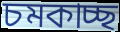
চমকাচ্ছ